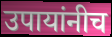
उपायांनीच